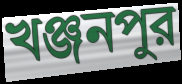
খঞ্জনপুর